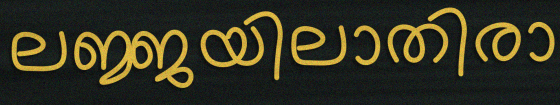
ലജ്ജയിലാതിരാ